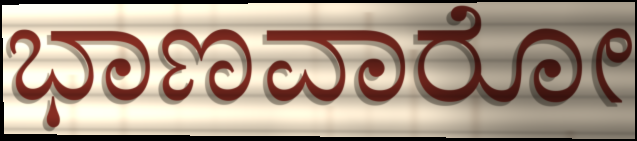
ಭಾಣವಾರೋ